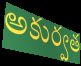
అకుర్వత